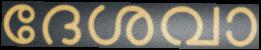
ദേശവാ